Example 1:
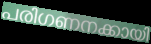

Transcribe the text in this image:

പരിഗണനക്കായി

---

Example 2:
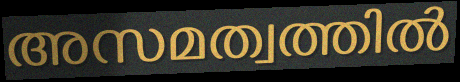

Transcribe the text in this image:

അസമത്വത്തിൽ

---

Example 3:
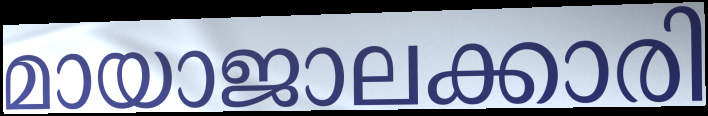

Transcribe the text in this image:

മായാജാലക്കാരി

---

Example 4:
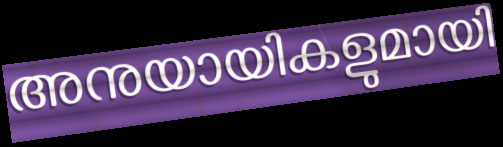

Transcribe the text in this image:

അനുയായികളുമായി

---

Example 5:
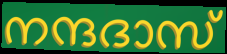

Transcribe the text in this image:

നന്ദദാസ്